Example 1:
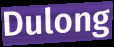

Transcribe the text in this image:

Dulong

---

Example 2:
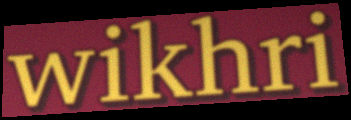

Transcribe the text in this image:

wikhri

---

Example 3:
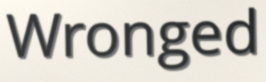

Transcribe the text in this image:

Wronged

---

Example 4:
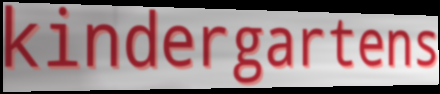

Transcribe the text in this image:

kindergartens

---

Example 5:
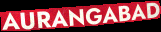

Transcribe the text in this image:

AURANGABAD